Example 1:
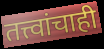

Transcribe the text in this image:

तत्त्वांचाही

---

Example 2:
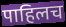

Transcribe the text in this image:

पाहिलच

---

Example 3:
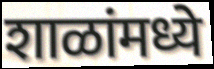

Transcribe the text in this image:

शाळांमध्ये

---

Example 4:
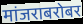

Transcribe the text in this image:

मांजराबरोबर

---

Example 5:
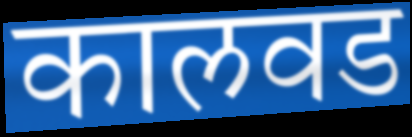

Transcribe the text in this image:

कालवड